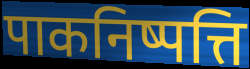
पाकनिष्पत्ति